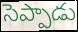
సెప్పాడు